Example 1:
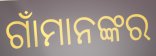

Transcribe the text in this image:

ଗାଁମାନଙ୍କର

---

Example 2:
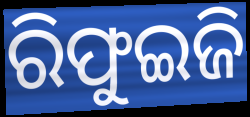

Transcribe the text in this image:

ରିଫୁଇଜି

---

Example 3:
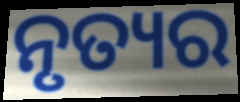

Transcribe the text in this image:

ନୃତ୍ୟର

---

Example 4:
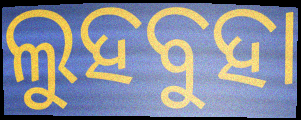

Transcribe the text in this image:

ଲୁହବୁହା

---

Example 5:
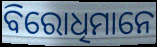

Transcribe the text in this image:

ବିରୋଧିମାନେ